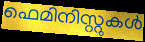
ഫെമിനിസ്റ്റുകൾ